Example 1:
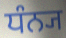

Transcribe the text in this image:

ਧੰਨ੍ਯ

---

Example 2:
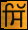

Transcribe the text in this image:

ਸਿੱ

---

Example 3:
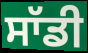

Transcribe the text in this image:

ਸਾੱਡੀ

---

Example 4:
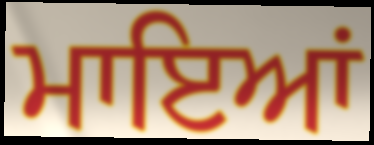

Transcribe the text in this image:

ਮਾਇਆਂ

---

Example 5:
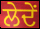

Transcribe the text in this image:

ਲੇਦੇਂ